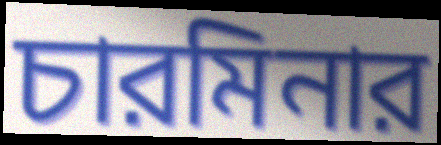
চারমিনার